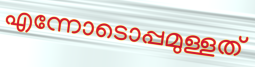
എന്നോടൊപ്പമുള്ളത്